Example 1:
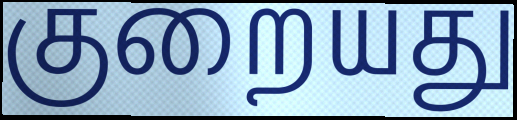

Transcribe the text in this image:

குறையது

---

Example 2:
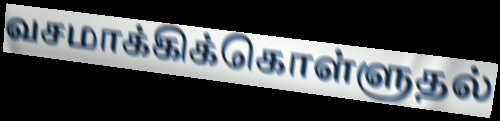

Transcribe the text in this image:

வசமாக்கிக்கொள்ளுதல்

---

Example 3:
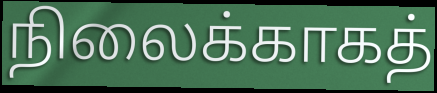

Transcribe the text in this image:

நிலைக்காகத்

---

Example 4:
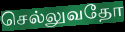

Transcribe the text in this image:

செல்லுவதோ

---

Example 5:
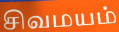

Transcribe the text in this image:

சிவமயம்